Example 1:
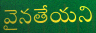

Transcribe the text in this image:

వైనతేయని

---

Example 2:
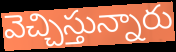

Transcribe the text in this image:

వెచ్చిస్తున్నారు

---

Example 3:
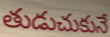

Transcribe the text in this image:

తుడుచుకునే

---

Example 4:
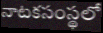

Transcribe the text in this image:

నాటకసంస్థలో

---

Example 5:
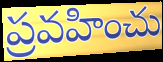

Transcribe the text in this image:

ప్రవహించు